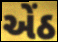
એંઠ